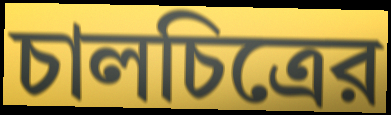
চালচিত্রের